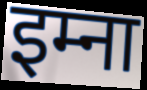
इम्ना